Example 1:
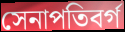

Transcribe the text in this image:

সেনাপতিবর্গ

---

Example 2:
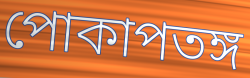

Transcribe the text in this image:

পোকাপতঙ্গ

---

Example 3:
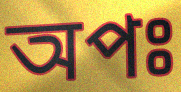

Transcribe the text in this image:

অপঃ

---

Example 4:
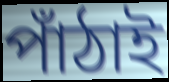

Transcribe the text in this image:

পাঁঠাই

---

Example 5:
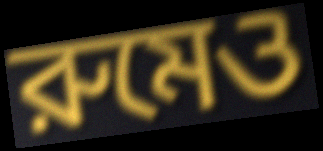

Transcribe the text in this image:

রুমেও